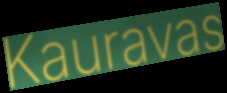
Kauravas